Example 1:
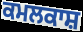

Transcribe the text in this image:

ਕਮਲਕਾਸ਼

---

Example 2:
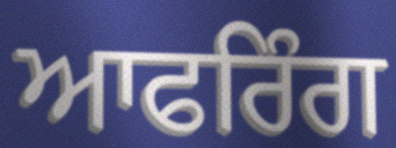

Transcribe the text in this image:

ਆਫਰਿੰਗ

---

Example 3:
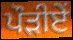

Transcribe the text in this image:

ਪੌੜੀਏਂ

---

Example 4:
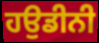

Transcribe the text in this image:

ਹਉਡੀਨੀ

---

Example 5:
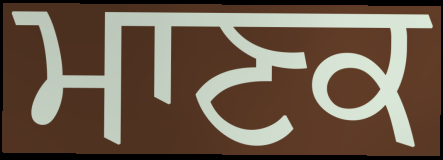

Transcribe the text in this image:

ਮਾਣਕ